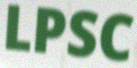
LPSC